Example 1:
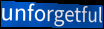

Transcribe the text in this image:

unforgetful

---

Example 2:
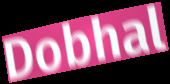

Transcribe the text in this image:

Dobhal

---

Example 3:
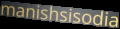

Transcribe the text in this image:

manishsisodia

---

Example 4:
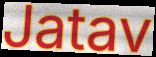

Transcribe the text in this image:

Jatav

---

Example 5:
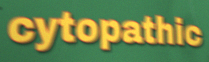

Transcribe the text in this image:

cytopathic